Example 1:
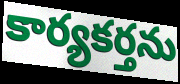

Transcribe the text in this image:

కార్యకర్తను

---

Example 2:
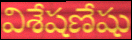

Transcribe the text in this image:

విశేషణేషు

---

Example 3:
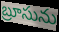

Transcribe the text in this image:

బ్రూసును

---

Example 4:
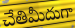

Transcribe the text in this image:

చేతిమీదుగా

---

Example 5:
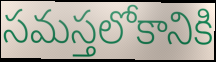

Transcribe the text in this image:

సమస్తలోకానికి